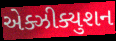
એક્ઝીક્યુશન